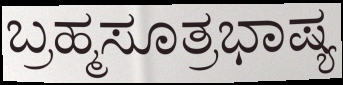
ಬ್ರಹ್ಮಸೂತ್ರಭಾಷ್ಯ